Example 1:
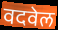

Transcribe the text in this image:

वदवेल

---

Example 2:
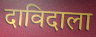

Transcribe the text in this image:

दाविदाला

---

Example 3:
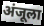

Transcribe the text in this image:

अंजूला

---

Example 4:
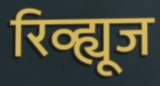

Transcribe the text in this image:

रिव्ह्यूज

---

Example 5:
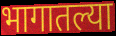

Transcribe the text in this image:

भागातल्या